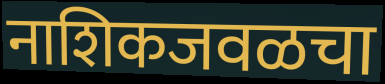
नाशिकजवळचा